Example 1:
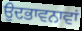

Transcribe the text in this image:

ਉਦਭਾਵਨਾਵਾਂ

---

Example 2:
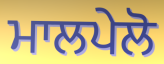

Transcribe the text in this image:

ਮਾਲਪੇਲੋ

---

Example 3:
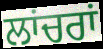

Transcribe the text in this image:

ਲਾਂਚਰਾਂ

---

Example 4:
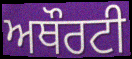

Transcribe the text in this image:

ਅਥੌਰਟੀ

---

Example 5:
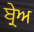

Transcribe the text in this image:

ਬ੍ਰੇਅ